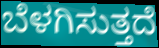
ಬೆಳಗಿಸುತ್ತದೆ